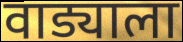
वाड्याला